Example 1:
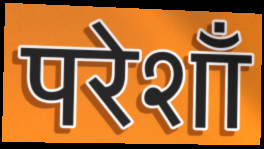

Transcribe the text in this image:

परेशाँ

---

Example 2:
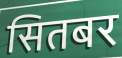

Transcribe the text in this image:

सितबर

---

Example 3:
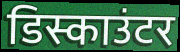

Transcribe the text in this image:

डिस्काउंटर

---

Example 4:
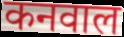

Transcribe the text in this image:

कनवाल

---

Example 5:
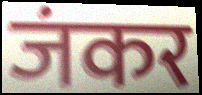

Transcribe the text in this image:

जंकर